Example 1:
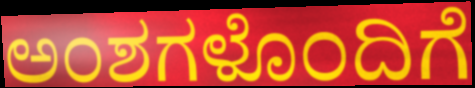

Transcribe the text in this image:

ಅಂಶಗಳೊಂದಿಗೆ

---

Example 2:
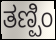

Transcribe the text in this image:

ತಣ್ಪಿಂ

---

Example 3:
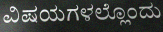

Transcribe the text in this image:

ವಿಷಯಗಳಲ್ಲೊಂದು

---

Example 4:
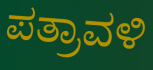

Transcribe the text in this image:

ಪತ್ರಾವಳಿ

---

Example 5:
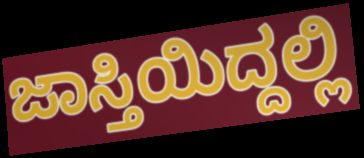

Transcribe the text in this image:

ಜಾಸ್ತಿಯಿದ್ದಲ್ಲಿ